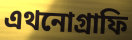
এথনোগ্রাফি